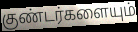
குண்டர்களையும்